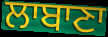
ਲਾਬਾਣਾ